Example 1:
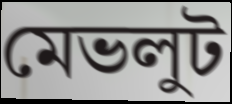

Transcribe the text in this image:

মেভলুট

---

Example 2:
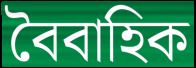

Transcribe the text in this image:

বৈবাহিক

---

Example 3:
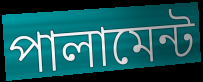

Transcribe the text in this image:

পালামেন্ট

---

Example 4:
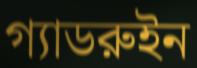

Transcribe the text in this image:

গ্যাডরুইন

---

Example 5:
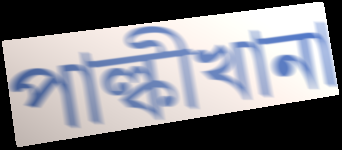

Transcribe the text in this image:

পাল্কীখানা